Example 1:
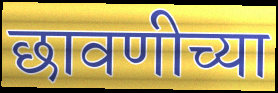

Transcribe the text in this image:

छावणीच्या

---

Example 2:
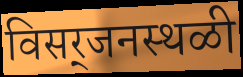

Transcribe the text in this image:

विसर्जनस्थळी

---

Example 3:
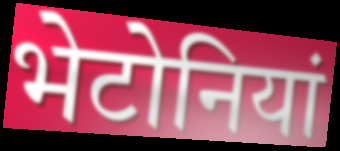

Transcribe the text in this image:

भेटोनियां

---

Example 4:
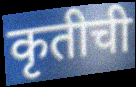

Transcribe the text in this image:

कृतीची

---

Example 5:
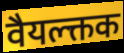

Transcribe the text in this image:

वैयल्क्तक